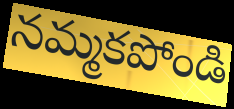
నమ్మకపోండి